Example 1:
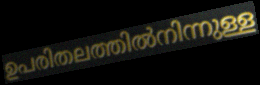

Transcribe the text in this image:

ഉപരിതലത്തിൽനിന്നുള്ള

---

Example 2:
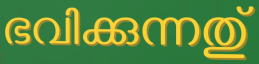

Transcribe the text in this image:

ഭവിക്കുന്നതു്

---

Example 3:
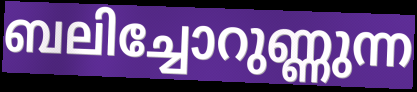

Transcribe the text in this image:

ബലിച്ചോറുണ്ണുന്ന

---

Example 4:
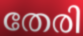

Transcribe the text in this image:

തേരി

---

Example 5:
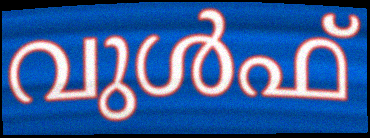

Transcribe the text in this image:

വുൾഫ്